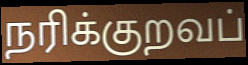
நரிக்குறவப்